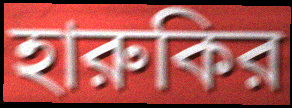
হারুকির